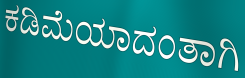
ಕಡಿಮೆಯಾದಂತಾಗಿ